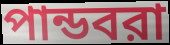
পান্ডবরা